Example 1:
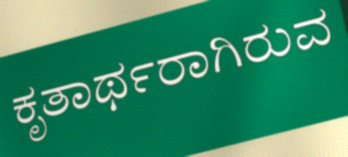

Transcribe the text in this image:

ಕೃತಾರ್ಥರಾಗಿರುವ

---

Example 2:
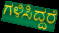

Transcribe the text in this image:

ಗಳಿಸಿದ್ದರೆ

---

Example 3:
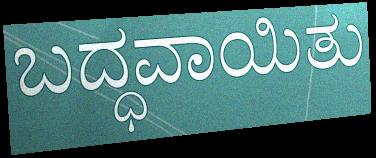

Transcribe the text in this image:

ಬದ್ಧವಾಯಿತು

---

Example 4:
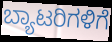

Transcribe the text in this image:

ಬ್ಯಾಟರಿಗಳಿಗೆ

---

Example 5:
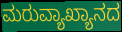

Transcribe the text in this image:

ಮರುವ್ಯಾಖ್ಯಾನದ